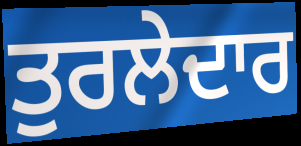
ਤੁਰਲੇਦਾਰ